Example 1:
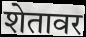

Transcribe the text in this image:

शेतावर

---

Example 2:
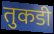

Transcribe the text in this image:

तुकडी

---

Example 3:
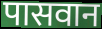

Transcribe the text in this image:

पासवान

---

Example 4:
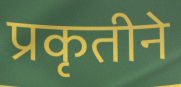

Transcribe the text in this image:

प्रकृतीने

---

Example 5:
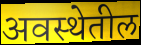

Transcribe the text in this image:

अवस्थेतील